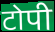
टोपी